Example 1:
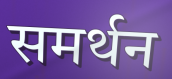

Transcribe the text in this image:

समर्थन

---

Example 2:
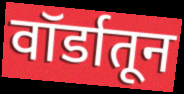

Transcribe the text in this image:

वॉर्डातून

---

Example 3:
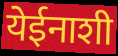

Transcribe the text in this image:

येईनाशी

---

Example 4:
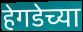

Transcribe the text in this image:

हेगडेच्या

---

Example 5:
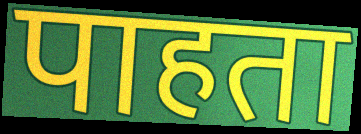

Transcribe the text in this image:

पाहता